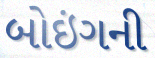
બોઇંગની